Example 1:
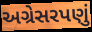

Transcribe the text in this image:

અગ્રેસરપણું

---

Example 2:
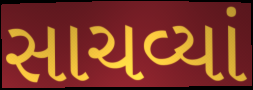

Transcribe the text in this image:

સાચવ્યાં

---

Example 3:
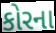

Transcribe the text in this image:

કોરના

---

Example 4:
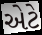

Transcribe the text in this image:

એટે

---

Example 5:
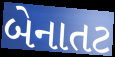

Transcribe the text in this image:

બેનાતટ